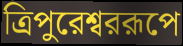
ত্রিপুরেশ্বররূপে